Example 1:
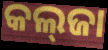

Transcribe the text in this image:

କଲ୍‌ଜା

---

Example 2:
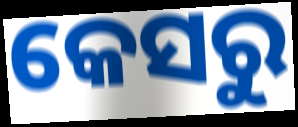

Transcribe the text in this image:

କେସରୁ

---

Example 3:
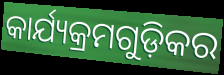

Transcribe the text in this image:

କାର୍ଯ୍ୟକ୍ରମଗୁଡ଼ିକର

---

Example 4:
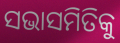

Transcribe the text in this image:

ସଭାସମିତିକୁ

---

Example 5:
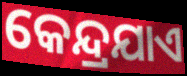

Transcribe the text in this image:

କେନ୍ଦ୍ରଯାଏ